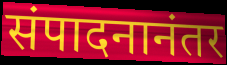
संपादनानंतर